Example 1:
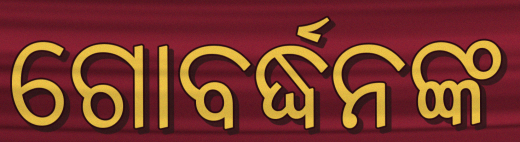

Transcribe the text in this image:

ଗୋବର୍ଦ୍ଧନଙ୍କ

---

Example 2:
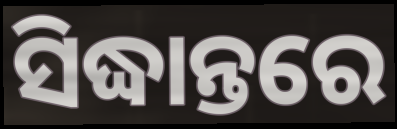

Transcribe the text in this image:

ସିଦ୍ଧାନ୍ତରେ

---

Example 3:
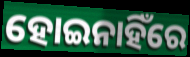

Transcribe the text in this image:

ହୋଇନାହିଁରେ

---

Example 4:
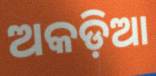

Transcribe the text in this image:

ଅକଡ଼ିଆ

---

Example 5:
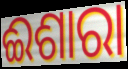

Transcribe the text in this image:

ଈଶାରା